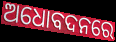
ଅଧୋବଦନରେ